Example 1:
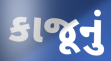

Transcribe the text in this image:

કાજૂનું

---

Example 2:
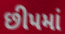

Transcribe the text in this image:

છીપમાં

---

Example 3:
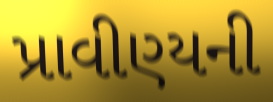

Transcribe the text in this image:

પ્રાવીણ્યની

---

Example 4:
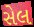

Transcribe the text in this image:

સેલ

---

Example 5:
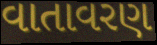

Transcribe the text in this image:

વાતાવરણ